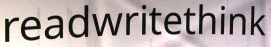
readwritethink